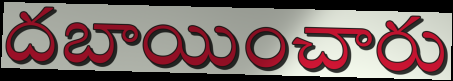
దబాయించారు